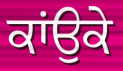
ਕਾਂਉਕੇ